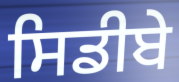
ਸਿਡੀਬੇ